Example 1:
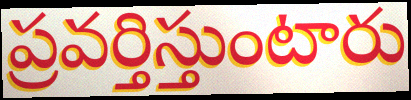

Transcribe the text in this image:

ప్రవర్తిస్తుంటారు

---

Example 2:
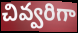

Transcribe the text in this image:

చివ్వరిగా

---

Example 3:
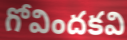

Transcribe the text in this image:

గోవిందకవి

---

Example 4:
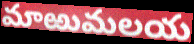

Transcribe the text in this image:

మాఱుమలయ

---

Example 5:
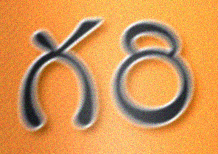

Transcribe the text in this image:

గరి